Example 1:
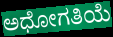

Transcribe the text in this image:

ಅಧೋಗತಿಯೆ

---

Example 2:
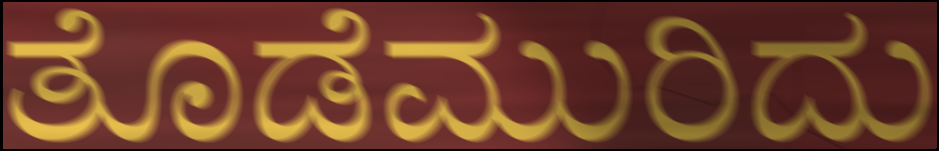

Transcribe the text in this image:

ತೊಡೆಮುರಿದು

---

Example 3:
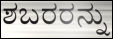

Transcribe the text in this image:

ಶಬರರನ್ನು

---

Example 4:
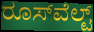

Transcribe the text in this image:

ರೂಸ್‌ವೆಲ್ಟ್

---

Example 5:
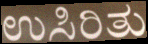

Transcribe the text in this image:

ಉಸಿರಿತು